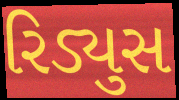
રિડ્યુસ